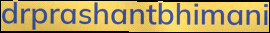
drprashantbhimani